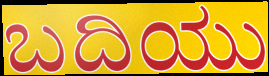
ಬದಿಯು